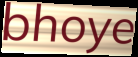
bhoye